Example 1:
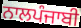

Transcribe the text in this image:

ਨਾਲਪੰਜਾਬੀ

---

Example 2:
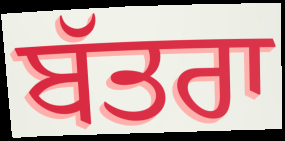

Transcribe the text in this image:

ਬੱਤਰਾ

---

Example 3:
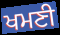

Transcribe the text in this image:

ਖਮਣੀ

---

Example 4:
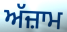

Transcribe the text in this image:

ਅੱਜ਼ਾਮ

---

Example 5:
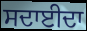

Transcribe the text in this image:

ਸਦਾਈਦਾ